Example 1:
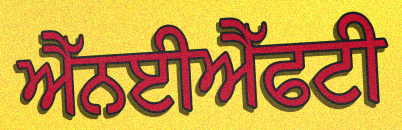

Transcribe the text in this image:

ਐੱਨਈਐੱਫਟੀ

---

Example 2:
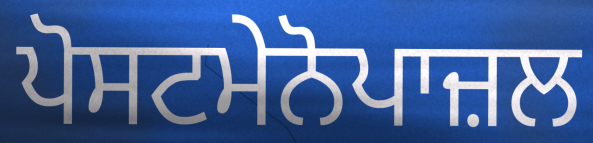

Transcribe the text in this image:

ਪੋਸਟਮੇਨੋਪਾਜ਼ਲ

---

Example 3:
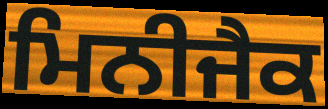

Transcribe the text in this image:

ਮਿਨੀਜੈਕ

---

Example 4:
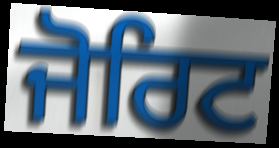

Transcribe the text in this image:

ਜੋਰਿਟ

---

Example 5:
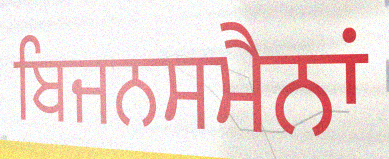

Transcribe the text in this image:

ਬਿਜਨਸਮੈਨਾਂ